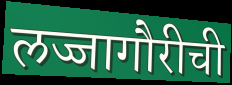
लज्जागौरीची